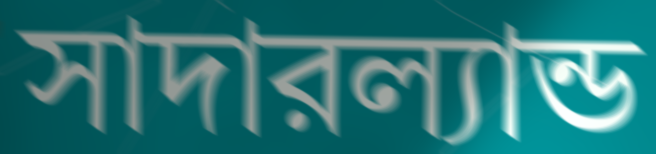
সাদারল্যান্ড